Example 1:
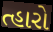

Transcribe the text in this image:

ત્હારો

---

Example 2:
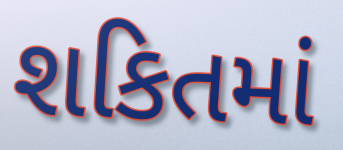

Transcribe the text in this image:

શકિતમાં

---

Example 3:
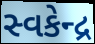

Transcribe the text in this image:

સ્વકેન્દ્ર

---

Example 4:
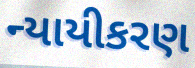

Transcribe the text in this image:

ન્યાયીકરણ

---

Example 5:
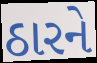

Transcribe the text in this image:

ઠારને